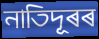
নাতিদূৰৰ